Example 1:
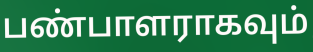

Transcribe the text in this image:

பண்பாளராகவும்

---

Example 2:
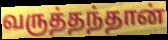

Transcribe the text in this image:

வருத்தந்தான்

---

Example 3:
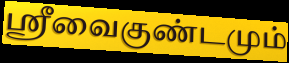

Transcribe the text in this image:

ஸ்ரீவைகுண்டமும்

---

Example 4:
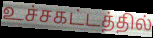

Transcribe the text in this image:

உச்சகட்டத்தில்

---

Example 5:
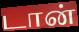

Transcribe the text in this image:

டான்